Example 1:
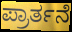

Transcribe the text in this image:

ಪ್ರಾರ್ತನೆ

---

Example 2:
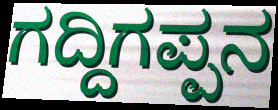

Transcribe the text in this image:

ಗದ್ದಿಗಪ್ಪನ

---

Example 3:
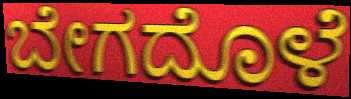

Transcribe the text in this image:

ಬೇಗದೊಳೆ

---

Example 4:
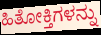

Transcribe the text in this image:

ಹಿತೋಕ್ತಿಗಳನ್ನು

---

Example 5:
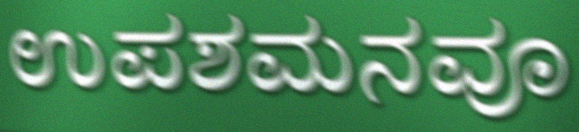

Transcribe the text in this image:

ಉಪಶಮನವೂ